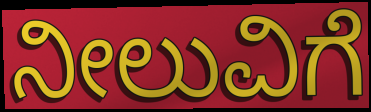
ನೀಲುವಿಗೆ